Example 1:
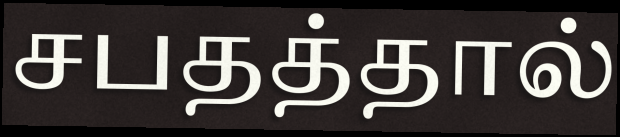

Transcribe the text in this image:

சபதத்தால்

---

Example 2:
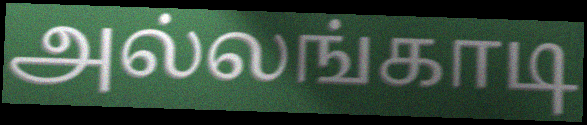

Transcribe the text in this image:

அல்லங்காடி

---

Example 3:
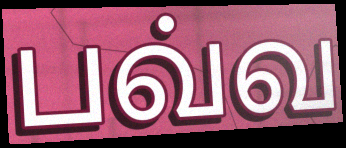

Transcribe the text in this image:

பவ்வ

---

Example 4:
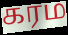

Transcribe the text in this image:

கரம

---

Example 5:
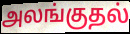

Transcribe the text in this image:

அலங்குதல்